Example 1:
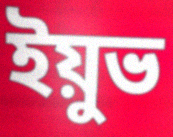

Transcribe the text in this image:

ইয়ুভ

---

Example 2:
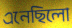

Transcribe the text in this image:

এনেছিলো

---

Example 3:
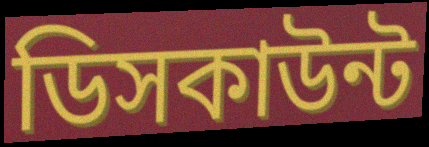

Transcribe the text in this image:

ডিসকাউন্ট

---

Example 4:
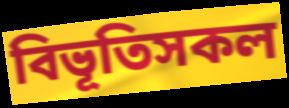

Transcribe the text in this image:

বিভূতিসকল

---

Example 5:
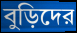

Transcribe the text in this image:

বুড়িদের